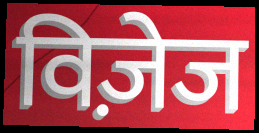
विज़ेज